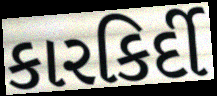
કારકિર્દી